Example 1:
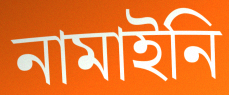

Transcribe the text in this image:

নামাইনি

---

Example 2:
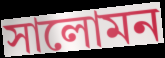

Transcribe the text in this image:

সালোমন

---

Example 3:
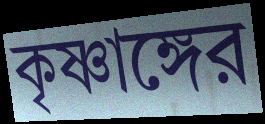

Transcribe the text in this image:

কৃষ্ণাঙ্গের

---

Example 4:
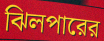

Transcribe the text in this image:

ঝিলপারের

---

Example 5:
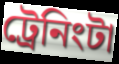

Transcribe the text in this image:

ট্রেনিংটা